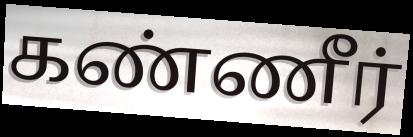
கண்ணீர்